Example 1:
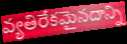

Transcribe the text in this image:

వ్యతిరేకమైనదాన్ని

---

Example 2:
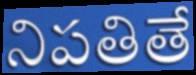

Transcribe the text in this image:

నిపతితే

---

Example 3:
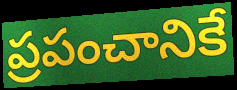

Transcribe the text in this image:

ప్రపంచానికే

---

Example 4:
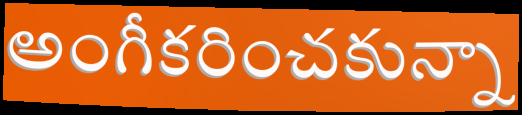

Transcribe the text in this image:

అంగీకరించకున్నా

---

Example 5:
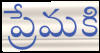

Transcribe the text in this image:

ప్రేమకి